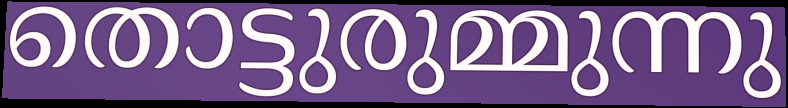
തൊട്ടുരുമ്മുന്നു